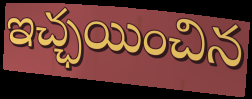
ఇచ్ఛయించిన